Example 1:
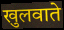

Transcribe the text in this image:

खुलवाते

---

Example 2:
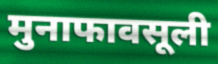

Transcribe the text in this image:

मुनाफावसूली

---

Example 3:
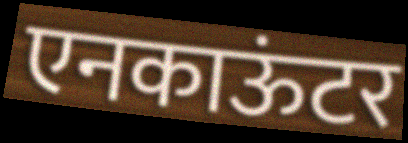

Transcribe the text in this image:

एनकाऊंटर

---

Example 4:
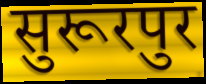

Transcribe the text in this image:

सुरूरपुर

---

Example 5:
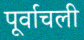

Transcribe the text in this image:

पूर्वाचली